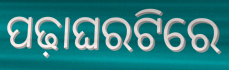
ପଢ଼ାଘରଟିରେ